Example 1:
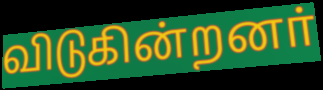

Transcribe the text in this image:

விடுகின்றனர்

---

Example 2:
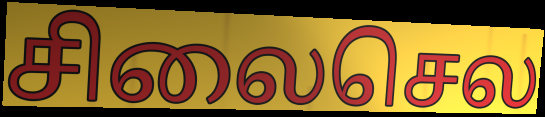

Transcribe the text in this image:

சிலைசெல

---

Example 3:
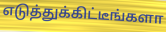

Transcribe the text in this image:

எடுத்துக்கிட்டீங்களா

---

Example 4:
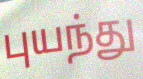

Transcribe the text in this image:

புயந்து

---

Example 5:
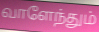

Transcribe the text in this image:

வாளேந்தும்